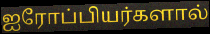
ஐரோப்பியர்களால்